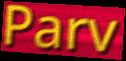
Parv